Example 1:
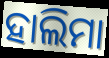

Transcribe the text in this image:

ହାଲିମା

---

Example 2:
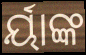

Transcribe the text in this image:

ର୍ୟାଙ୍କ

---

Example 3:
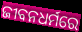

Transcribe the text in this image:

ଜୀବନଧର୍ମରେ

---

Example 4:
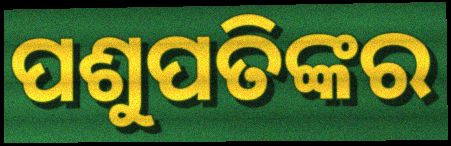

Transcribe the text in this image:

ପଶୁପତିଙ୍କର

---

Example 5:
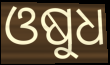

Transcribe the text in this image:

ଓଷୁଧ